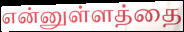
என்னுள்ளத்தை